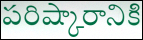
పరిష్కారానికి